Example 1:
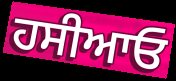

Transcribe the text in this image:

ਹਸੀਆਓ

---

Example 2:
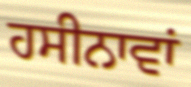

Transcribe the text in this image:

ਹਸੀਨਾਵਾਂ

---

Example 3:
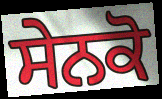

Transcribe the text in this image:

ਸੇਨਕੋ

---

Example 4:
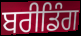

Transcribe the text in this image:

ਬਰੀਡਿੰਗ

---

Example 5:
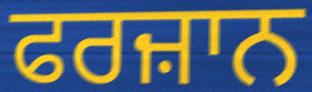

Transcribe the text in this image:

ਫਰਜ਼ਾਨ